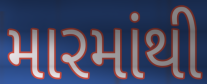
મારમાંથી